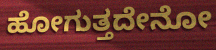
ಹೋಗುತ್ತದೇನೋ